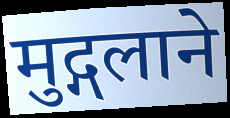
मुद्गलाने